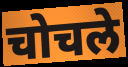
चोचले